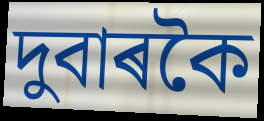
দুবাৰকৈ